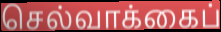
செல்வாக்கைப்